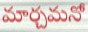
మార్చమనో